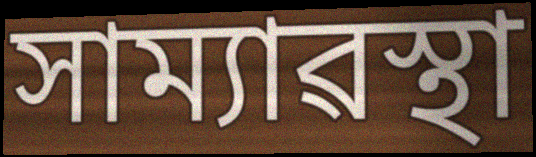
সাম্যাৱস্থা